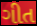
ગીત